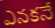
ఎనకనే